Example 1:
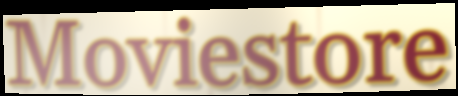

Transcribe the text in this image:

Moviestore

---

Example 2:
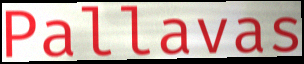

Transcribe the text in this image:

Pallavas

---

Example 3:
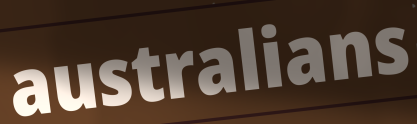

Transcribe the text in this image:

australians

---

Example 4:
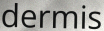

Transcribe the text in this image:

dermis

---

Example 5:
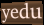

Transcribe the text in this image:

yedu